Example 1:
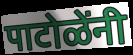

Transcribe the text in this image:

पाटोळेंनी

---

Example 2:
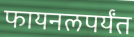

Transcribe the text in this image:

फायनलपर्यंत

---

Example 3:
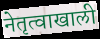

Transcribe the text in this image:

नेतृत्वाखाली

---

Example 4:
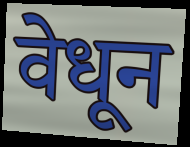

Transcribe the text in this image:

वेधून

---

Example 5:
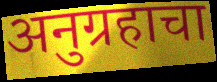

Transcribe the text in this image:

अनुग्रहाचा